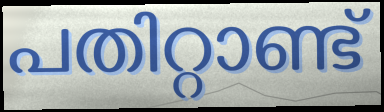
പതിറ്റാണ്ട്